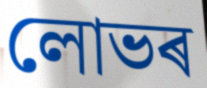
লোভৰ